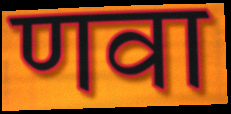
णवा